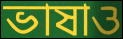
ভাষাও